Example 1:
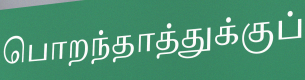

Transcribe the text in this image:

பொறந்தாத்துக்குப்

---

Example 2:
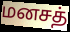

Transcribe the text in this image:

மனசத்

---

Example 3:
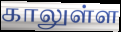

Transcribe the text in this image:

காலுள்ள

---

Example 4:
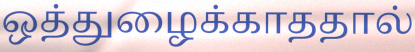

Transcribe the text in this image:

ஒத்துழைக்காததால்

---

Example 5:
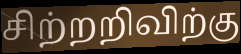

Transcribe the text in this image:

சிற்றறிவிற்கு